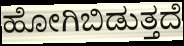
ಹೋಗಿಬಿಡುತ್ತದೆ